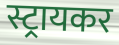
स्ट्रायकर